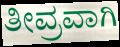
ತೀವ್ರವಾಗಿ